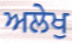
ਅਲੇਖੁ